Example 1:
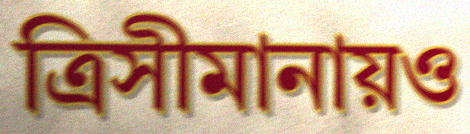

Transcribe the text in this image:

ত্রিসীমানায়ও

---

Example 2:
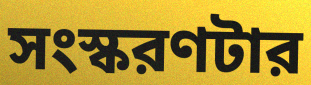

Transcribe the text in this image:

সংস্করণটার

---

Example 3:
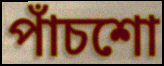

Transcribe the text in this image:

পাঁচশো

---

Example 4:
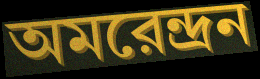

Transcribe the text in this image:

অমরেন্দ্রন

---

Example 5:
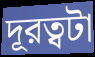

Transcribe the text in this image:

দূরত্বটা